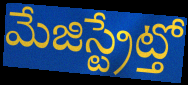
మేజిస్ట్రేట్తో